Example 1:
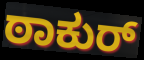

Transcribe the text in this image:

ಠಾಕುರ್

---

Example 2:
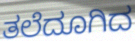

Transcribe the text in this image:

ತಲೆದೂಗಿದ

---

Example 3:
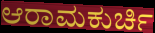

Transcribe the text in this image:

ಆರಾಮಕುರ್ಚಿ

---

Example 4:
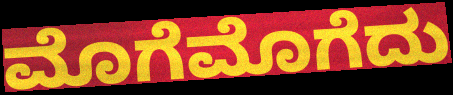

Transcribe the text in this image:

ಮೊಗೆಮೊಗೆದು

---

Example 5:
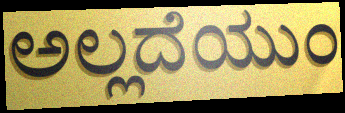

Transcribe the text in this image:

ಅಲ್ಲದೆಯುಂ